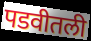
पडवीतली